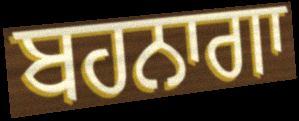
ਬਹਨਾਗਾ